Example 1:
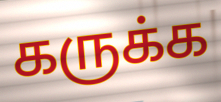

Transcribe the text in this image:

கருக்க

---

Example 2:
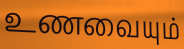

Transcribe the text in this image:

உணவையும்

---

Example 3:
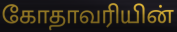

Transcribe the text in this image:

கோதாவரியின்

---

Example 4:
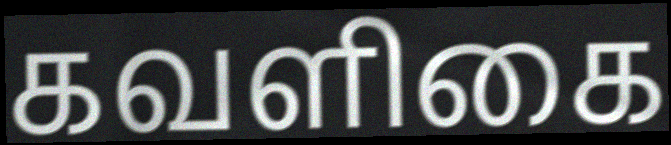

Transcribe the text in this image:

கவளிகை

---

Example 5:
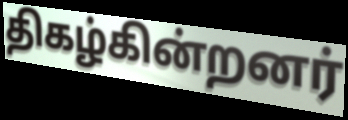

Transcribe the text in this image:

திகழ்கின்றனர்